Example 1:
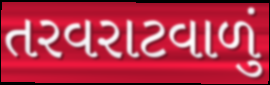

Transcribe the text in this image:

તરવરાટવાળું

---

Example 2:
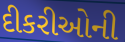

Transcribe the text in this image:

દીકરીઓની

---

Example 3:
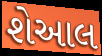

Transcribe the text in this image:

શેઆલ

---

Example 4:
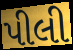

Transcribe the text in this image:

પીલી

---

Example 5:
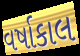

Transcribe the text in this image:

વર્ષાકાલ